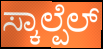
ಸ್ಕಾಲ್ಪೆಲ್